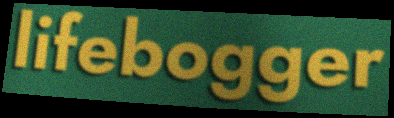
lifebogger